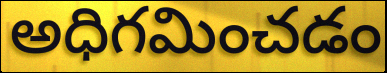
అధిగమించడం